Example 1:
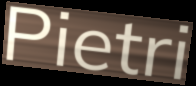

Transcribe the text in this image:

Pietri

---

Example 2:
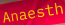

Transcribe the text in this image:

Anaesth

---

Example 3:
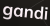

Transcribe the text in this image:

gandi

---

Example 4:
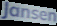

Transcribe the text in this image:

Jansen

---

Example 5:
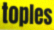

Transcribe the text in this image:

toples